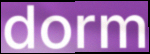
dorm